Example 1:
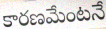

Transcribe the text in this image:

కారణమేంటనే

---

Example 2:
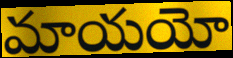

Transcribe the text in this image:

మాయయో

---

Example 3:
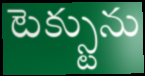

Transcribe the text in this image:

టెక్స్టును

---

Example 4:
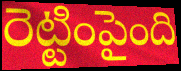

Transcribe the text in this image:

రెట్టింపైంది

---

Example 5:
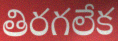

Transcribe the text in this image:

తిరగలేక